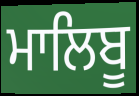
ਮਾਲਿਬੂ